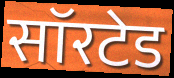
सॉरटेड